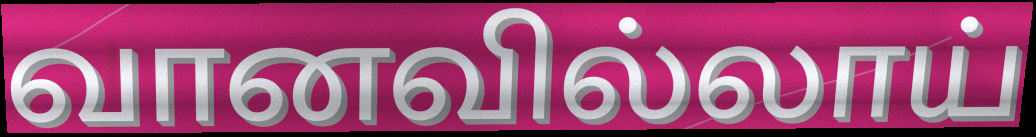
வானவில்லாய்